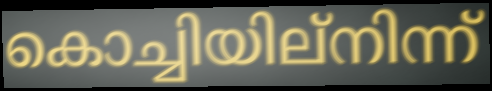
കൊച്ചിയില്നിന്ന്